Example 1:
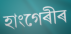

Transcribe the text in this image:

হাংগেৰীৰ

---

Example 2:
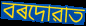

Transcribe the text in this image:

বৰদোৱাত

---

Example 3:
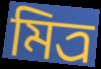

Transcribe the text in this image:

মিত্ৰ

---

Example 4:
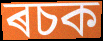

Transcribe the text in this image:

ৰচক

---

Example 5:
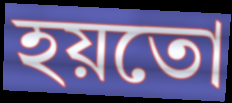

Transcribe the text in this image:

হয়তো